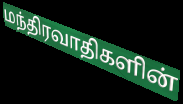
மந்திரவாதிகளின்